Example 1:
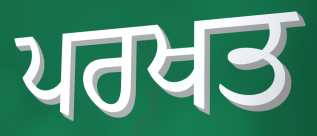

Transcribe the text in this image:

ਪਰਖਤ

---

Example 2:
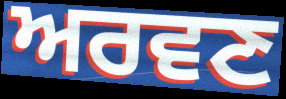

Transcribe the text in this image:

ਅਰਵਣ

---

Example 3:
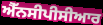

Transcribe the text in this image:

ਐੱਨਸੀਪੀਸੀਆਰ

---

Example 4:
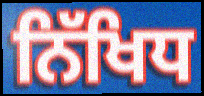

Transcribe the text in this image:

ਨਿੱਖਿਧ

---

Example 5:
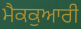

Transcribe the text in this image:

ਮੈਕਕੁਆਰੀ